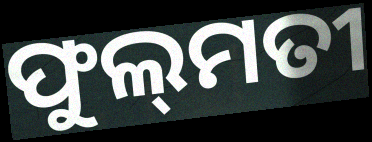
ଫୁଲ୍‍ମତୀ